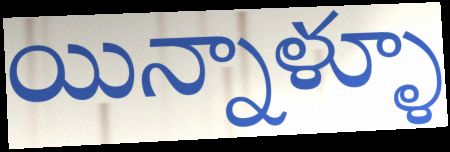
యిన్నాళ్ళూ